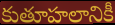
కుతూహలానికీ